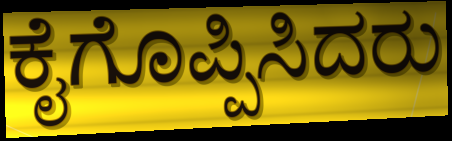
ಕೈಗೊಪ್ಪಿಸಿದರು